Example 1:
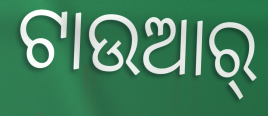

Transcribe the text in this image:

ଟାଉଆର୍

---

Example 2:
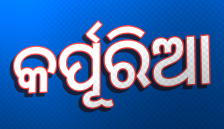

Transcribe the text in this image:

କର୍ପୂରିଆ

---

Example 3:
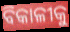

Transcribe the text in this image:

ବିକାଳୀକୁ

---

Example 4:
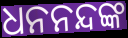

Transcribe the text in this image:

ଧନନନ୍ଦଙ୍କ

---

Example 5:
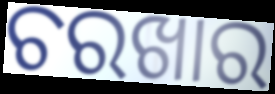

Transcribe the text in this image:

ଚରଖାର